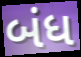
બંધ